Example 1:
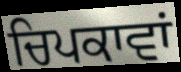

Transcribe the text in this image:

ਚਿਪਕਾਵਾਂ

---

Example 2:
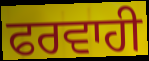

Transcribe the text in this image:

ਫਰਵਾਹੀ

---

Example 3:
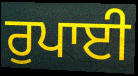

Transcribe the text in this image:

ਰੁਪਾਈ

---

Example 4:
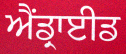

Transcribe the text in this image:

ਐਂਡ੍ਰਾਈਡ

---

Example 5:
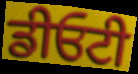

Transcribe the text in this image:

ਡੀਓਟੀ